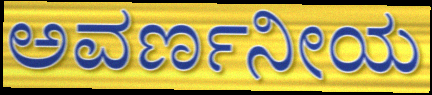
ಅವರ್ಣನೀಯ